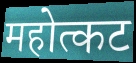
महोत्कट